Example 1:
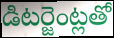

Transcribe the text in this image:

డిటర్జెంట్లతో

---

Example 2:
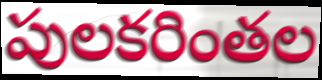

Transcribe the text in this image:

పులకరింతల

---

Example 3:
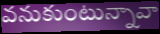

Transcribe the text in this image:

వనుకుంటున్నావా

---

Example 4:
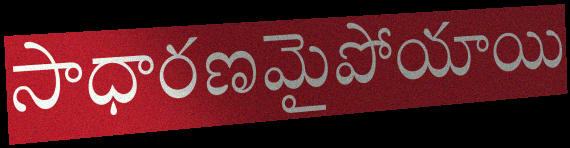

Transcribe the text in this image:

సాధారణమైపోయాయి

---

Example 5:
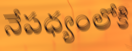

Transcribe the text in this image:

నేపధ్యంలోకి